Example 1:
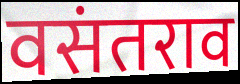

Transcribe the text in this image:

वसंतराव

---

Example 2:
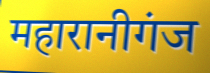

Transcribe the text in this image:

महारानीगंज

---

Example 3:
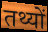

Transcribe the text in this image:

तथ्यों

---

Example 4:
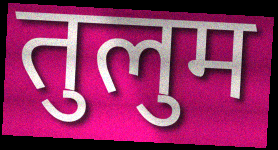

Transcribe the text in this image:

तुलुम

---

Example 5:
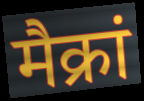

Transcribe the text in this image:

मैक्रां